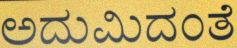
ಅದುಮಿದಂತೆ